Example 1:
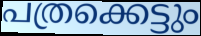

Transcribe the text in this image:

പത്രക്കെട്ടും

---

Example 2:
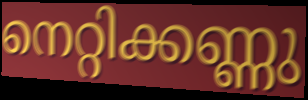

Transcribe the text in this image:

നെറ്റിക്കണ്ണു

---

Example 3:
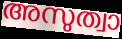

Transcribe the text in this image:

അസുത്വാ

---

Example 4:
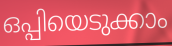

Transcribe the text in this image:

ഒപ്പിയെടുക്കാം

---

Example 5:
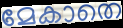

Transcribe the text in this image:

മേകാതെ